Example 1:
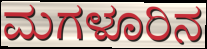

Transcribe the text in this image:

ಮಗಳೂರಿನ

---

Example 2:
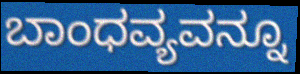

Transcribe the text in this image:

ಬಾಂಧವ್ಯವನ್ನೂ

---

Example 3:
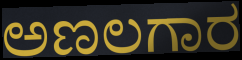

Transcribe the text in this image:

ಅಣಲಗಾರ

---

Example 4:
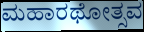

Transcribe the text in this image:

ಮಹಾರಥೋತ್ಸವ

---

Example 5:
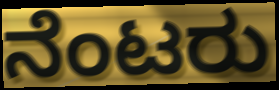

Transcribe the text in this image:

ನೆಂಟರು